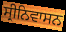
ਸ੍ਰੀਨਿਵਾਸਨ